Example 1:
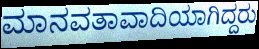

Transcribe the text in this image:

ಮಾನವತಾವಾದಿಯಾಗಿದ್ದರು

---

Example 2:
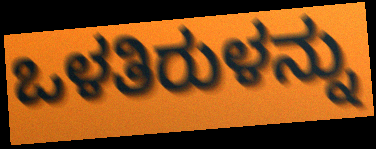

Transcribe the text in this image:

ಒಳತಿರುಳನ್ನು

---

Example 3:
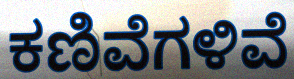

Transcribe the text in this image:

ಕಣಿವೆಗಳಿವೆ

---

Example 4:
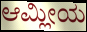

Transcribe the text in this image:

ಆಮ್ಲೀಯ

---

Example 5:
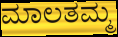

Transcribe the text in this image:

ಮಾಲತಮ್ಮ